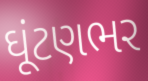
ઘૂંટણભર